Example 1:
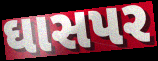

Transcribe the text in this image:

ઘાસપર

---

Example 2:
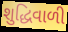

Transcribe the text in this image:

શુદ્ધિવાળી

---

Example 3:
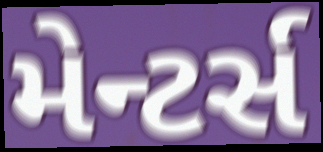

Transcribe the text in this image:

મેન્ટર્સ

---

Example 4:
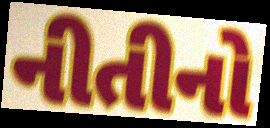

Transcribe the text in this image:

નીતીનો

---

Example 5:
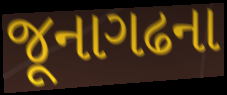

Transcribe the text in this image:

જૂનાગઢના